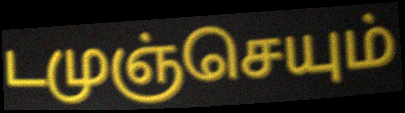
டமுஞ்செயும்